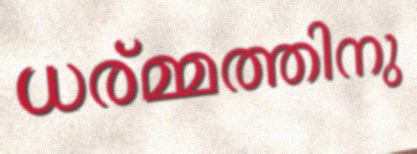
ധര്മ്മത്തിനു